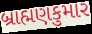
બ્રાહ્મણકુમાર